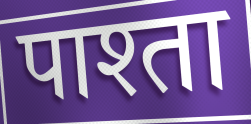
पाश्ता